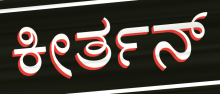
ಕೀರ್ತನ್